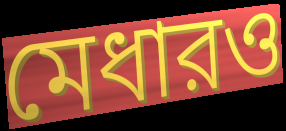
মেধারও